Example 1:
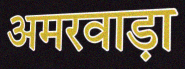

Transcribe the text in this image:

अमरवाड़ा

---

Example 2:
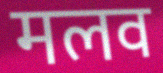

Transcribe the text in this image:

मलव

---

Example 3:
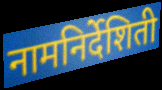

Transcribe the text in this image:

नामनिर्देशिती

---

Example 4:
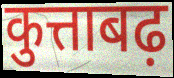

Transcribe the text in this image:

कुत्ताबढ़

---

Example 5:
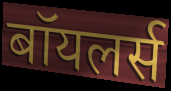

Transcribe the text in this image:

बॉयलर्स